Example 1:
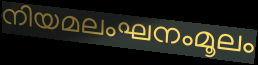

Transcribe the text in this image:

നിയമലംഘനംമൂലം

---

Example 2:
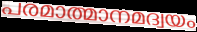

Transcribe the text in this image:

പരമാത്മാനമദ്വയം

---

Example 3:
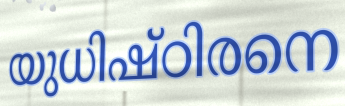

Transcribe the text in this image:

യുധിഷ്ഠിരനെ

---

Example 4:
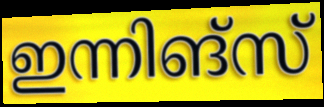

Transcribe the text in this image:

ഇന്നിങ്സ്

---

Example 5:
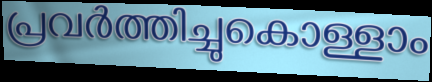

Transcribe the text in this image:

പ്രവർത്തിച്ചുകൊള്ളാം